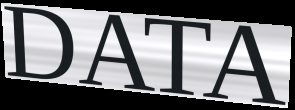
DATA